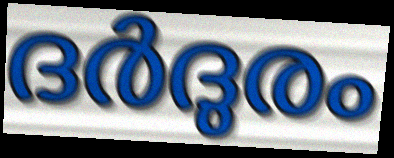
ദർദുരം